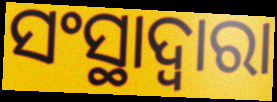
ସଂସ୍ଥାଦ୍ଵାରା